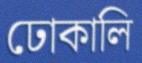
ঢোকালি